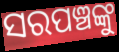
ସରପଞ୍ଚଙ୍କୁ